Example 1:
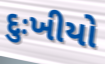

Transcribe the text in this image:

દુઃખીયો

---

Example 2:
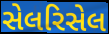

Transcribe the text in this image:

સેલરિસેલ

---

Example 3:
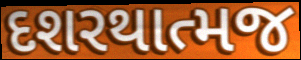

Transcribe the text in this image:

દશરથાત્મજ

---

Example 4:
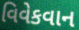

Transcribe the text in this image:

વિવેકવાન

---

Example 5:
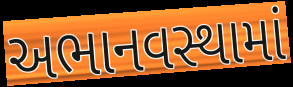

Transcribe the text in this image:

અભાનવસ્થામાં